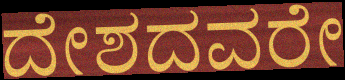
ದೇಶದವರೇ